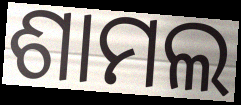
ଶାମଲ